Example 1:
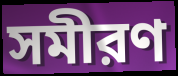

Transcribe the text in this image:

সমীরণ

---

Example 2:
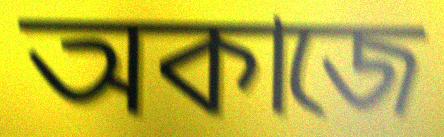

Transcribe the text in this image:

অকাজে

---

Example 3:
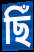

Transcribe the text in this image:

ছিঁ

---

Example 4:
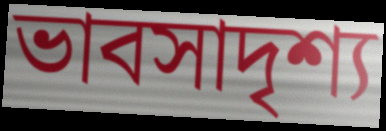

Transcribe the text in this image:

ভাবসাদৃশ্য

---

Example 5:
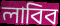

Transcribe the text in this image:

লাবিব